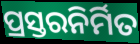
ପ୍ରସ୍ତରନିର୍ମିତ